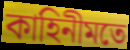
কাহিনীমতে